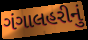
ગંગાલહરીનું